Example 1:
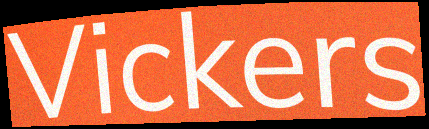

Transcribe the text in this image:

Vickers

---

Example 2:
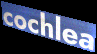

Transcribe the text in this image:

cochlea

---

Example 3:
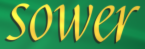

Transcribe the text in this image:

sower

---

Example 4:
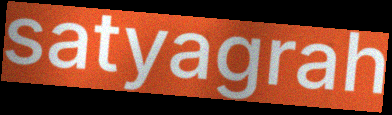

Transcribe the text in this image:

satyagrah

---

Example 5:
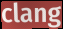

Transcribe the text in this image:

clang